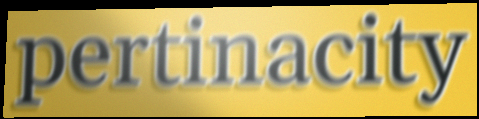
pertinacity